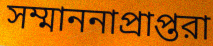
সম্মাননাপ্রাপ্তরা